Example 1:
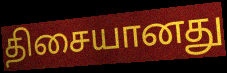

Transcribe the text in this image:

திசையானது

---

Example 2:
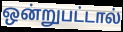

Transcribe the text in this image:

ஒன்றுபட்டால்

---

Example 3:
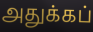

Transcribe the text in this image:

அதுக்கப்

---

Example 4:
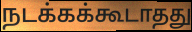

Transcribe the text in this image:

நடக்கக்கூடாதது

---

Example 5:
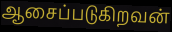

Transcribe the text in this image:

ஆசைப்படுகிறவன்